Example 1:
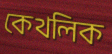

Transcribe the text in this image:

কেথলিক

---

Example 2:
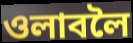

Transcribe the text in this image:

ওলাবলৈ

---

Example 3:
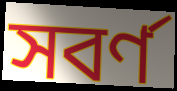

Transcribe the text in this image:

সবৰ্ণ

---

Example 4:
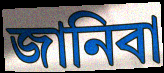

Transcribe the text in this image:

জানিবা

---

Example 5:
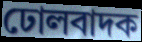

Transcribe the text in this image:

ঢোলবাদক